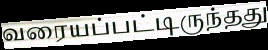
வரையப்பட்டிருந்தது